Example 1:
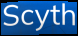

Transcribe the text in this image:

Scyth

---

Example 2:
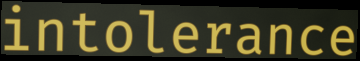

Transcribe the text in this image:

intolerance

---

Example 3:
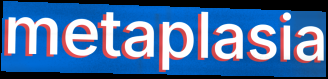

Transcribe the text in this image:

metaplasia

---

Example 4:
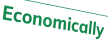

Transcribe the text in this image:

Economically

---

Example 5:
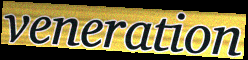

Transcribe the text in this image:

veneration